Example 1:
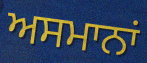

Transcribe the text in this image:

ਅਸਮਾਨਾਂ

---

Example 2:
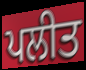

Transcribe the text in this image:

ਪਲੀਤ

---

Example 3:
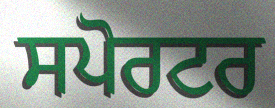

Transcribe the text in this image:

ਸਪੋਰਟਰ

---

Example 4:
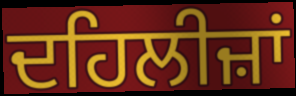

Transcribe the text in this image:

ਦਹਿਲੀਜ਼ਾਂ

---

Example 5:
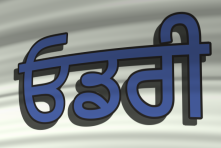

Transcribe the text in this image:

ਓਡਰੀ